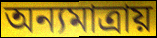
অন্যমাত্রায়